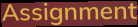
Assignment